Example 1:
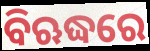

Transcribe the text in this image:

ବିଋଦ୍ଧରେ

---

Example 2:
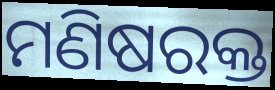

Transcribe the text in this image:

ମଣିଷରକ୍ତ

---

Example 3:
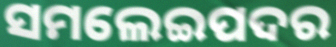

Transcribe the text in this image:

ସମଲେଇପଦର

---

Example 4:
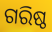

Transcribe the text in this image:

ଗରିଷ୍ଠ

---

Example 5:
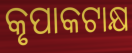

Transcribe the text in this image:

କୃପାକଟାକ୍ଷ